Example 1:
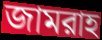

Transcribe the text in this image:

জামরাহ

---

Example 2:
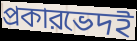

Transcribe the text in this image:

প্রকারভেদই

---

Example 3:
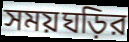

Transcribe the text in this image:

সময়ঘড়ির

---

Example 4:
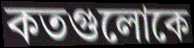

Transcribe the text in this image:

কতগুলোকে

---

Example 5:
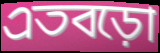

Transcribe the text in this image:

এতবড়ো